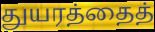
துயரத்தைத்